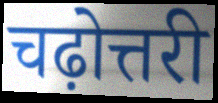
चढ़ोत्तरी